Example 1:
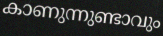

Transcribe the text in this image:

കാണുന്നുണ്ടാവും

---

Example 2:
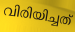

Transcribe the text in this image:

വിരിയിച്ചത്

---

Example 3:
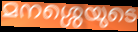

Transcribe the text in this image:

മനശ്ശെയുടെ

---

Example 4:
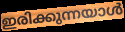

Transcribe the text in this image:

ഇരിക്കുന്നയാൾ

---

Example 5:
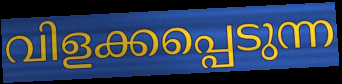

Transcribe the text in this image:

വിളക്കപ്പെടുന്ന